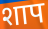
शाप